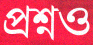
প্রশ্নও